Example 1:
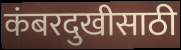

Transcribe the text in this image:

कंबरदुखीसाठी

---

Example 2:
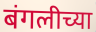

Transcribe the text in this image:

बंगलीच्या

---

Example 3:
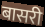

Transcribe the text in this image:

बासरी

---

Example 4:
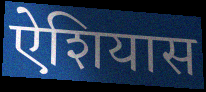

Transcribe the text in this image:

ऐशियास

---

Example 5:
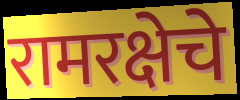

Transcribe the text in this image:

रामरक्षेचे